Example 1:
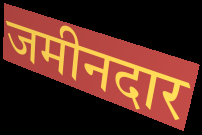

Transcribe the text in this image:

जमीनदार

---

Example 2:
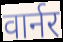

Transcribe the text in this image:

वार्नर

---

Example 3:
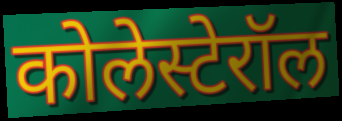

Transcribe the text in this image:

कोलेस्टेरॉल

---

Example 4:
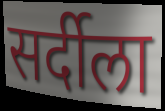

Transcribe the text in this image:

सर्दीला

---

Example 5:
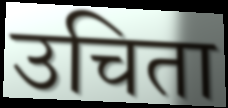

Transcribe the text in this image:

उचिता